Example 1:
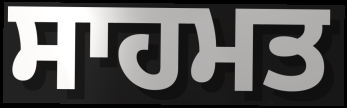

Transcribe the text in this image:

ਸਾਹਮਤ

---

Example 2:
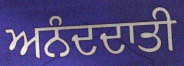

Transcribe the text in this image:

ਅਨੰਦਦਾਤੀ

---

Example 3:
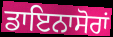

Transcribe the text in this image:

ਡਾਇਨਾਸੋਰਾਂ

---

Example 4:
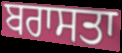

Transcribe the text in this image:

ਬਰਾਸਤਾ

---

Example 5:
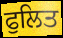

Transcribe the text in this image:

ਫੁਲਿਤ